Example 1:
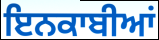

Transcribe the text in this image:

ਇਨਕਾਬੀਆਂ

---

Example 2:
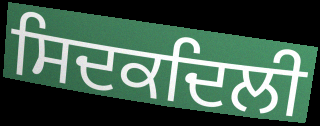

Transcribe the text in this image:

ਸਿਦਕਦਿਲੀ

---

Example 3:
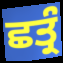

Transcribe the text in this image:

ਛਤ੍ਰੰ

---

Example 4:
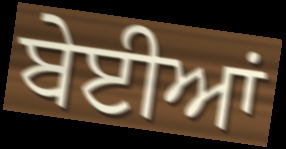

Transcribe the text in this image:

ਬੇਈਆਂ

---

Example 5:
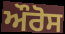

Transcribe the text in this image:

ਔਰੋਸ